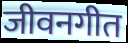
जीवनगीत